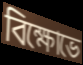
বিক্ষোভে